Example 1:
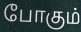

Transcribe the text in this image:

போகும்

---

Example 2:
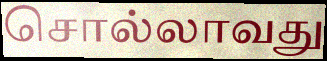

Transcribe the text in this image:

சொல்லாவது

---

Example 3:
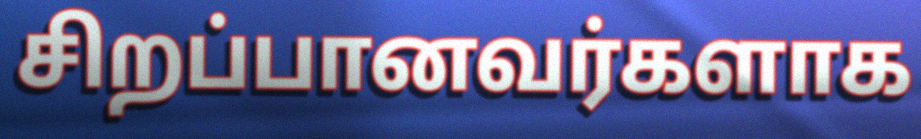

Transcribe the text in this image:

சிறப்பானவர்களாக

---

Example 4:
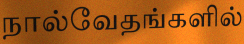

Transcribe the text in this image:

நால்வேதங்களில்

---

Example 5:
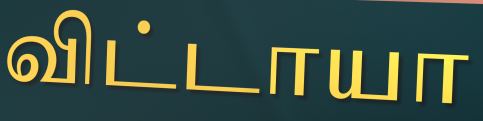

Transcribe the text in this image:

விட்டாயா